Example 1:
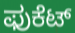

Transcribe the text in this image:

ಫುಕೆಟ್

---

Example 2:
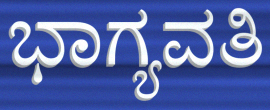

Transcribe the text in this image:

ಭಾಗ್ಯವತಿ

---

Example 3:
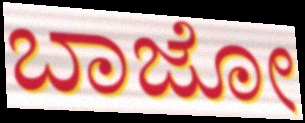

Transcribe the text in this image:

ಬಾಜೋ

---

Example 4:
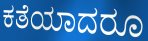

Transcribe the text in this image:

ಕತೆಯಾದರೂ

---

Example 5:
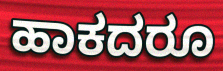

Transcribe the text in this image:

ಹಾಕದರೂ